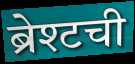
ब्रेश्टची